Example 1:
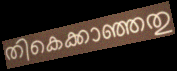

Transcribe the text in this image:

തികെക്കാഞ്ഞതു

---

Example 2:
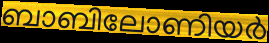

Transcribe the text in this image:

ബാബിലോണിയർ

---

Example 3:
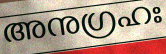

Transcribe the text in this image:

അനുഗ്രഹഃ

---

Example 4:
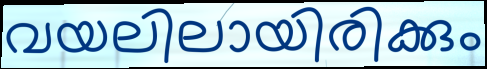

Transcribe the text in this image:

വയലിലായിരിക്കും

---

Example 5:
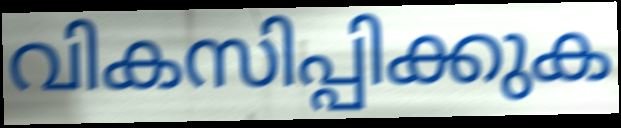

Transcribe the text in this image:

വികസിപ്പിക്കുക